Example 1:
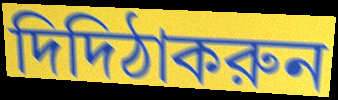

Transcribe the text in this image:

দিদিঠাকরুন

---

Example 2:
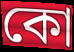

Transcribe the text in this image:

কো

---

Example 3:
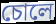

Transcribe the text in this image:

চোলে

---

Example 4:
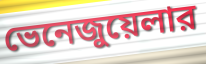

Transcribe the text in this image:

ভেনেজুয়েলার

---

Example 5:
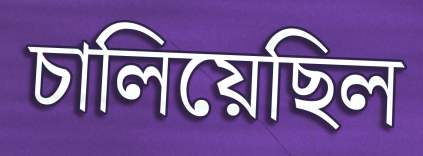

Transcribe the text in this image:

চালিয়েছিল